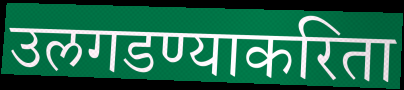
उलगडण्याकरिता